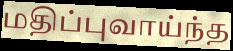
மதிப்புவாய்ந்த